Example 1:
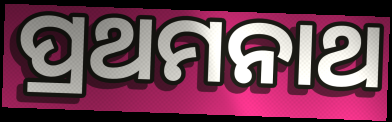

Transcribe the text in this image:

ପ୍ରଥମନାଥ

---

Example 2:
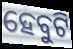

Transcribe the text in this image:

ହେବୁଟି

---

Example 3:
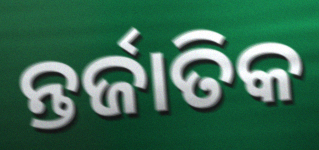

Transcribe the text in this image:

ନ୍ତର୍ଜାତିକ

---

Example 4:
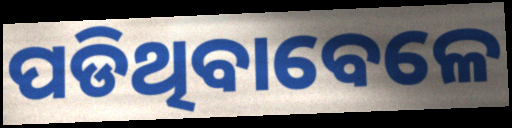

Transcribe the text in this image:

ପଡିଥିବାବେଳେ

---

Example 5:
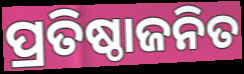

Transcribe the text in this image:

ପ୍ରତିଷ୍ଠାଜନିତ